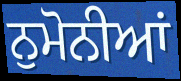
ਨੁਮੋਨੀਆਂ